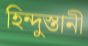
হিন্দুস্তানী